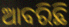
ଆବରିଛି